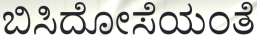
ಬಿಸಿದೋಸೆಯಂತೆ